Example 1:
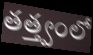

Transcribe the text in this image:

తత్త్వంలో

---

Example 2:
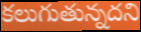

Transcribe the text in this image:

కలుగుతున్నదని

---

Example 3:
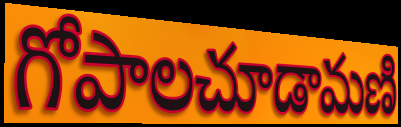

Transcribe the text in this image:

గోపాలచూడామణి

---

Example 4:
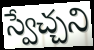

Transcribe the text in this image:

స్వేచ్చని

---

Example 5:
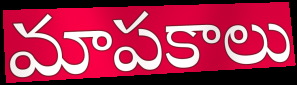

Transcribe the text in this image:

మాపకాలు